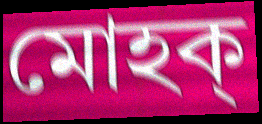
মোহক্